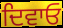
ਦਿਵਾਓ